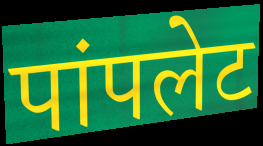
पांपलेट